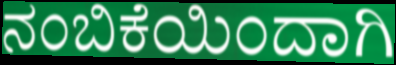
ನಂಬಿಕೆಯಿಂದಾಗಿ